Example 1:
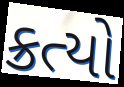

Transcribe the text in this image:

ક્રત્યો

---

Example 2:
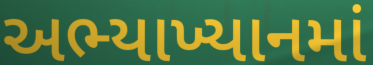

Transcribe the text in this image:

અભ્યાખ્યાનમાં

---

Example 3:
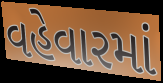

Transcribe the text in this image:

વહેવારમાં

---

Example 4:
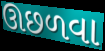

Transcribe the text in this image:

ઊછળવા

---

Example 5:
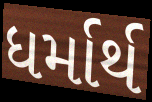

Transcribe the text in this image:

ધર્માર્થ